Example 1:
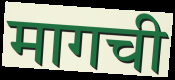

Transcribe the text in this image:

मागची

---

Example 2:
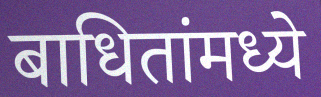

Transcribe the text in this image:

बाधितांमध्ये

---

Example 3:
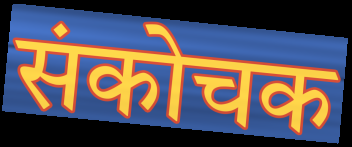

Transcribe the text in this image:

संकोचक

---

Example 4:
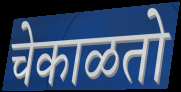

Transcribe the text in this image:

चेकाळतो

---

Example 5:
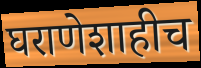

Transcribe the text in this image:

घराणेशाहीच